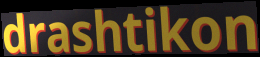
drashtikon